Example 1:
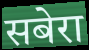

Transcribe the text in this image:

सबेरा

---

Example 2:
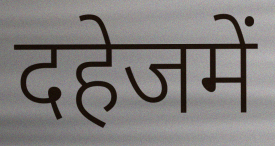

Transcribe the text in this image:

दहेजमें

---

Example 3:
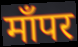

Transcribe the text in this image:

माँपर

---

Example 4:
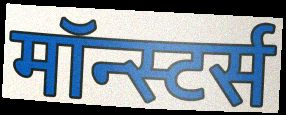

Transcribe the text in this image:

मॉन्स्टर्स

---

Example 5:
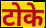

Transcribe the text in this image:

टोके